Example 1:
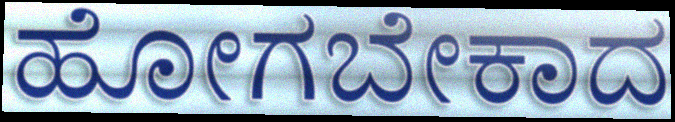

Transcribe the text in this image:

ಹೋಗಬೇಕಾದ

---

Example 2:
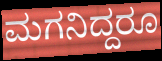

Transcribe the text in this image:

ಮಗನಿದ್ದರೂ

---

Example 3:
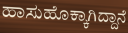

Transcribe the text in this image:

ಹಾಸುಹೊಕ್ಕಾಗಿದ್ದಾನೆ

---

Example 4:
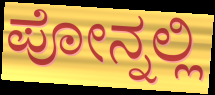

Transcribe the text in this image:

ಪೋನ್ನಲ್ಲಿ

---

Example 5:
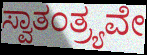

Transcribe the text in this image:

ಸ್ವಾತಂತ್ರ್ಯವೇ